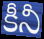
కీనీ